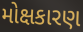
મોક્ષકારણ